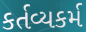
કર્તવ્યકર્મ